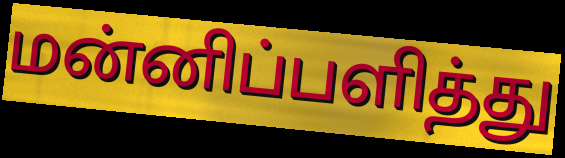
மன்னிப்பளித்து